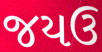
જયઉ